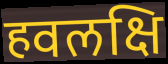
हवलक्षि